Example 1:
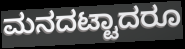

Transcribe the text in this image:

ಮನದಟ್ಟಾದರೂ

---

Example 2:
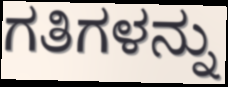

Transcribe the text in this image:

ಗತಿಗಳನ್ನು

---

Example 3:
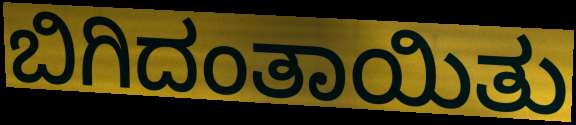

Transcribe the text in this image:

ಬಿಗಿದಂತಾಯಿತು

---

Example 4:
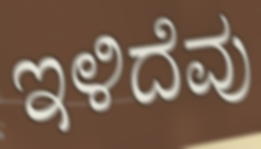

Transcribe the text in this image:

ಇಳಿದೆವು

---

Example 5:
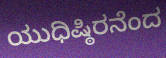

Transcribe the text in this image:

ಯುಧಿಷ್ಠಿರನೆಂದ